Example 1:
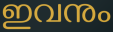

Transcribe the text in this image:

ഇവനും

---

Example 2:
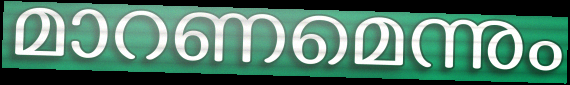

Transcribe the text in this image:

മാറണമെന്നും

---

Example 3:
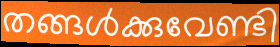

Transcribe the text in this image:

തങ്ങൾക്കുവേണ്ടി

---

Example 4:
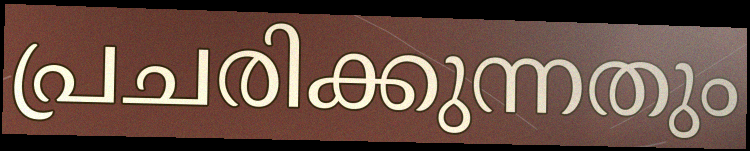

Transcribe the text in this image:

പ്രചരിക്കുന്നതും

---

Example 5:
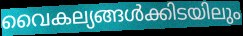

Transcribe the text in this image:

വൈകല്യങ്ങൾക്കിടയിലും